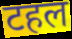
टहल